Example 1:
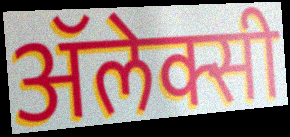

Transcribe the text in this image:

ॲलेक्सी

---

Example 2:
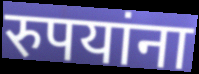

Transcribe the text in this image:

रुपयांना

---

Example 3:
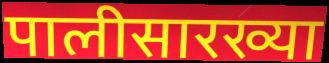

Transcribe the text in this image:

पालीसारख्या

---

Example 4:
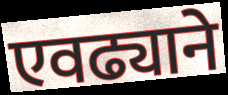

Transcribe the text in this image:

एवढ्याने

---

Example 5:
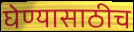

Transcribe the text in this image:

घेण्यासाठीच